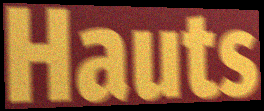
Hauts